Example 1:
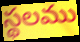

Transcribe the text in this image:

స్థలము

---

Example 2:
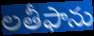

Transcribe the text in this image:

లతీఫాను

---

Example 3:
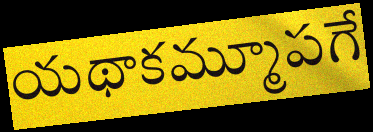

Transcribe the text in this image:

యథాకమ్మూపగే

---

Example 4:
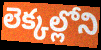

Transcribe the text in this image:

లెక్కల్లోని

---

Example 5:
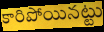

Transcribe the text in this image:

కారిపోయినట్టు